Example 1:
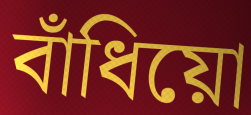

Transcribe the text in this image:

বাঁধিয়ো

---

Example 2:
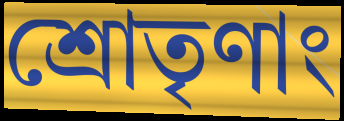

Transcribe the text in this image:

শ্রোতৃণাং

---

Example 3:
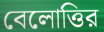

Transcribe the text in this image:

বেলোত্তির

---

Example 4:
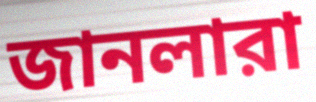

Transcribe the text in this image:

জানলারা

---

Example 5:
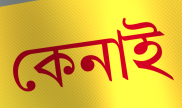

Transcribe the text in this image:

কেনাই